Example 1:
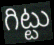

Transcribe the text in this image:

గిట్టు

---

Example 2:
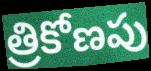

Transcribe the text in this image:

త్రికోణపు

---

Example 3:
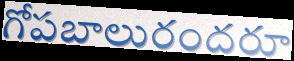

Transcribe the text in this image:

గోపబాలురందరూ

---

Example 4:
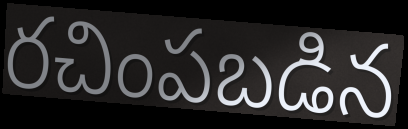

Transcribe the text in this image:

రచింపబడిన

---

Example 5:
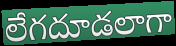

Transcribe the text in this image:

లేగదూడలాగా